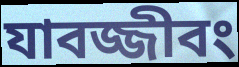
যাবজ্জীবং